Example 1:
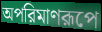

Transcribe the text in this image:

অপরিমাণরূপে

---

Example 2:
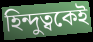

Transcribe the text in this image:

হিন্দুত্বকেই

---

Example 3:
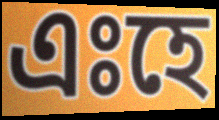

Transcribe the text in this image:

এঃহে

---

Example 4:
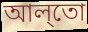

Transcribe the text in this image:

আল্‌তো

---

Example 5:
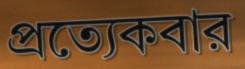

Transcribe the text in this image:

প্রত্যেকবার